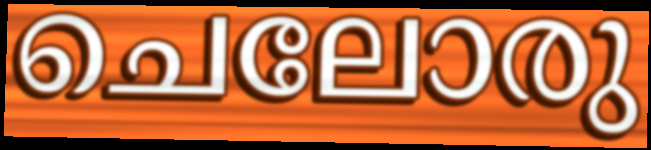
ചെലോരു